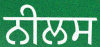
ਨੀਲਸ